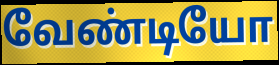
வேண்டியோ